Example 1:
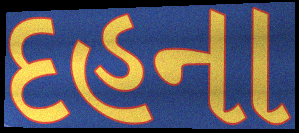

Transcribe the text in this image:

દહના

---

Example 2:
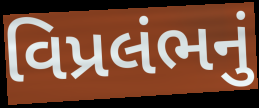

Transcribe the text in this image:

વિપ્રલંભનું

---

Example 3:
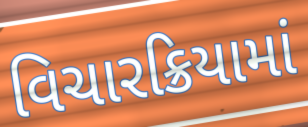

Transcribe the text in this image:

વિચારક્રિયામાં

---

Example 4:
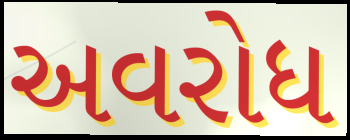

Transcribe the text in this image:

અવરોધ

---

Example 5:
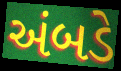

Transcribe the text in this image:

અંબડે